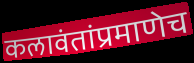
कलावंतांप्रमाणेच